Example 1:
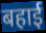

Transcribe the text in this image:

बहाई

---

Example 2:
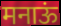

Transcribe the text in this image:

मनाऊं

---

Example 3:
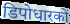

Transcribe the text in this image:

डिपोधारकों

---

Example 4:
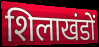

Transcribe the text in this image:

शिलाखंडों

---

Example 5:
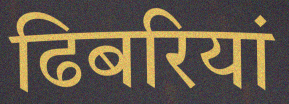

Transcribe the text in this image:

ढिबरियां